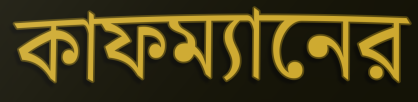
কাফম্যানের